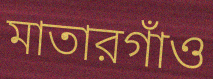
মাতারগাঁও